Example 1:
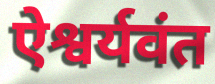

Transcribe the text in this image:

ऐश्वर्यवंत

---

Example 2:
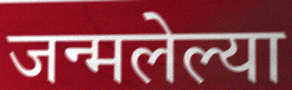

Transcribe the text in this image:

जन्मलेल्या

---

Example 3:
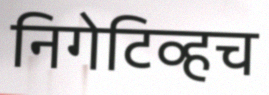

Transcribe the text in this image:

निगेटिव्हच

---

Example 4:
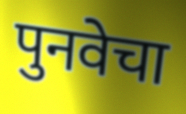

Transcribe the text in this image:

पुनवेचा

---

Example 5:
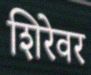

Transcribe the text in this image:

शिरेवर